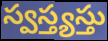
స్వస్త్యస్తు